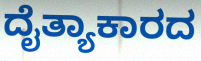
ದೈತ್ಯಾಕಾರದ